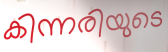
കിന്നരിയുടെ